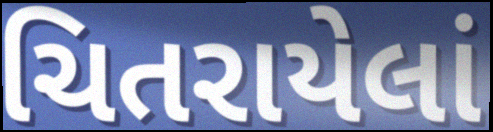
ચિતરાયેલાં